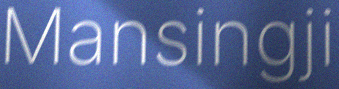
Mansingji